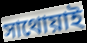
সাথোয়াই